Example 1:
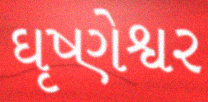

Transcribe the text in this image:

ઘૃષ્ણેશ્વર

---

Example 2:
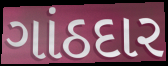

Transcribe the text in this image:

ગાંઠદાર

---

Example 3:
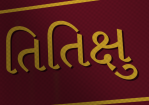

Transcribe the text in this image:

તિતિક્ષુ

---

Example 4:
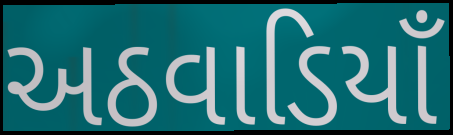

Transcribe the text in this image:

અઠવાડિયાઁ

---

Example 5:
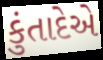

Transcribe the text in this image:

કુંતાદેએ